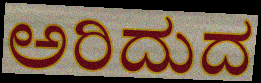
ಅರಿದುದ